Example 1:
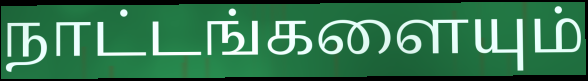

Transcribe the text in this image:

நாட்டங்களையும்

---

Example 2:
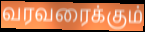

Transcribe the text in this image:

வரவரைக்கும்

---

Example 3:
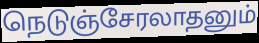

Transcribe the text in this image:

நெடுஞ்சேரலாதனும்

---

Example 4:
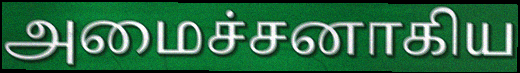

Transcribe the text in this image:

அமைச்சனாகிய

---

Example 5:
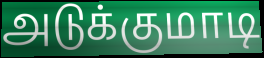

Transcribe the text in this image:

அடுக்குமாடி